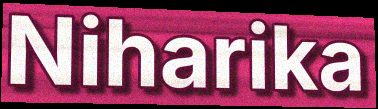
Niharika